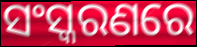
ସଂସ୍କରଣରେ